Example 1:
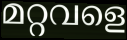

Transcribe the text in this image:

മറ്റവളെ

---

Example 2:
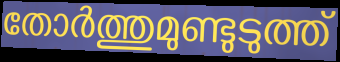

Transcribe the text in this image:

തോർത്തുമുണ്ടുടുത്ത്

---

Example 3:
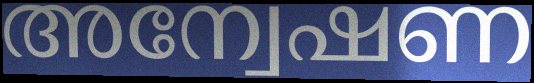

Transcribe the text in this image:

അന്വേഷണ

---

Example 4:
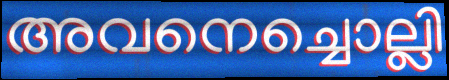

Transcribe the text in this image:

അവനെച്ചൊല്ലി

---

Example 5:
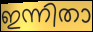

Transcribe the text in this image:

ഇന്നിതാ